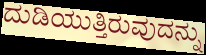
ದುಡಿಯುತ್ತಿರುವುದನ್ನು